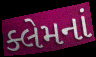
ક્લેમનાં